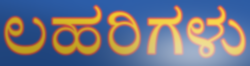
ಲಹರಿಗಳು